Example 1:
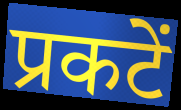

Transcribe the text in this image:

प्रकटें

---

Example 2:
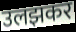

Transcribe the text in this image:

उलझकर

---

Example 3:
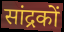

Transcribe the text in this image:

सांद्रकों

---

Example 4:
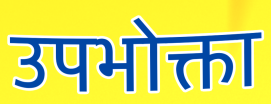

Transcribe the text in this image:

उपभोक्ता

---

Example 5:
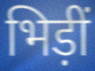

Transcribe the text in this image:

भिड़ीं